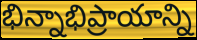
భిన్నాభిప్రాయాన్ని